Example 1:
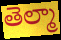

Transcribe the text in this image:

తెల్మా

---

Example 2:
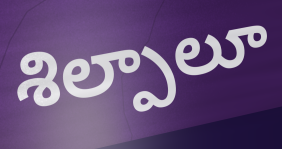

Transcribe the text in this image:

శిల్పాలూ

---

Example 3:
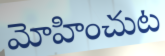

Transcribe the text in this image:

మోహించుట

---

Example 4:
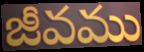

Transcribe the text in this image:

జీవము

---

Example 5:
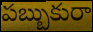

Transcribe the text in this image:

పబ్బుకురా